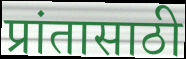
प्रांतासाठी